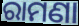
ରାମଣା